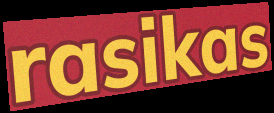
rasikas